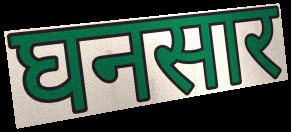
घनसार